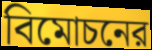
বিমোচনের